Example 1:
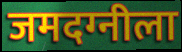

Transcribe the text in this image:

जमदग्नीला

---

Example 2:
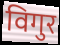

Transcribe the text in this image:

विगुर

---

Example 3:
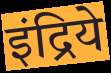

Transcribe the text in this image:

इंद्रिये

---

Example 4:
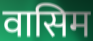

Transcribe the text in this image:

वासिम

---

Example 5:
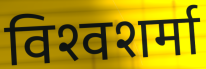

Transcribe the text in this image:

विश्वशर्मा